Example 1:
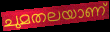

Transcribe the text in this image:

ചുമതലയാണ്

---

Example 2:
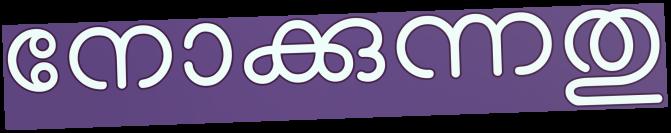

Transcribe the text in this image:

നോക്കുന്നതു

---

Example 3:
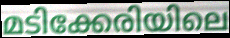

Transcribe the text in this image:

മടിക്കേരിയിലെ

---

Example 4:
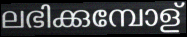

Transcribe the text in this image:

ലഭിക്കുമ്പോള്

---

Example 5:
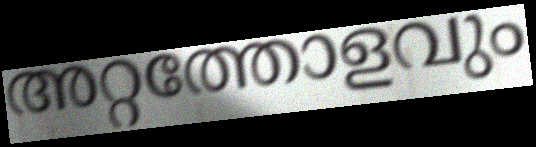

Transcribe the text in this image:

അറ്റത്തോളവും